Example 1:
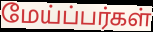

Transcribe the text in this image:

மேய்ப்பர்கள்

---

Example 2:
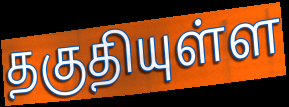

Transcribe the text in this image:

தகுதியுள்ள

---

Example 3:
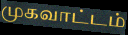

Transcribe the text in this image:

முகவாட்டம்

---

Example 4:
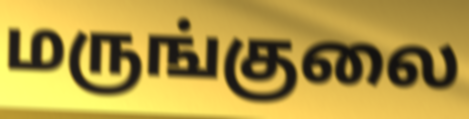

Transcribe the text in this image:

மருங்குலை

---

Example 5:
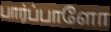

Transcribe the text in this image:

பார்ப்பாளோ